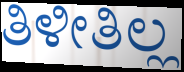
ತಿಳೀತಿಲ್ಲ